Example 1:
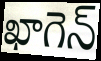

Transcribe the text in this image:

ఖాగెన్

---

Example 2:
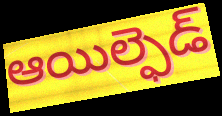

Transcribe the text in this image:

ఆయిల్ఫెడ్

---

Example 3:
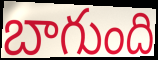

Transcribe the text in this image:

బాగుంది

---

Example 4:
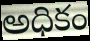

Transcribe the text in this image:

అధికం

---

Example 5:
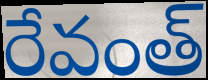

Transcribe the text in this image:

రేవంత్